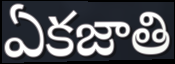
ఏకజాతి